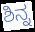
ಶಿನ್ನ